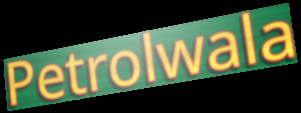
Petrolwala